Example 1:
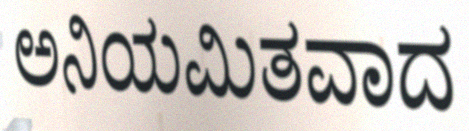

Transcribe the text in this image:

ಅನಿಯಮಿತವಾದ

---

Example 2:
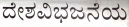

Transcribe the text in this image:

ದೇಶವಿಭಜನೆಯ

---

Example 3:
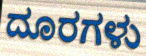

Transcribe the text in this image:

ದೂರಗಳು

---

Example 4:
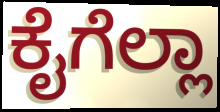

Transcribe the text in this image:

ಕೈಗೆಲ್ಲಾ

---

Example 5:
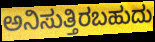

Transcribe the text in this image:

ಅನಿಸುತ್ತಿರಬಹುದು